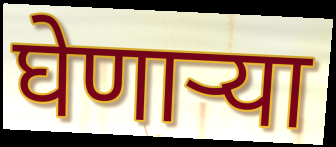
घेणार्‍या